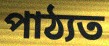
পাঠ্যত